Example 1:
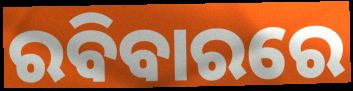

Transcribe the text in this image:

ରବିବାରରେ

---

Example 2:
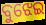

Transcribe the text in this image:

ବୁଝେଇ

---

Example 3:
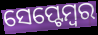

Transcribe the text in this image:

ସେପ୍ଟେମ୍ୱର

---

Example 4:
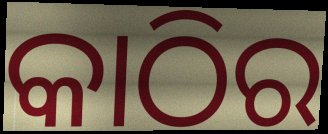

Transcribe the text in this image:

କାଠିର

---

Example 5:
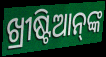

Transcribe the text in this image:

ଖ୍ରୀଷ୍ଟିଆନ୍‌ଙ୍କ